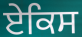
ਏਕਿਸ